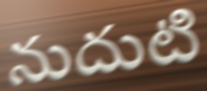
నుదుటి